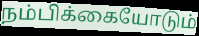
நம்பிக்கையோடும்